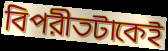
বিপরীতটাকেই